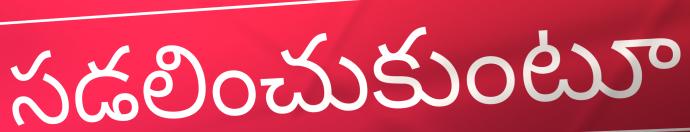
సడలించుకుంటూ